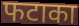
फटाका